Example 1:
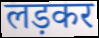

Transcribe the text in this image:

लड़कर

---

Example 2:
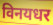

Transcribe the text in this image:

विनयधर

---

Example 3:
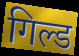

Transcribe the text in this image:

गिल्ड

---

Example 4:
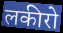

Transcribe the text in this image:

लकीरो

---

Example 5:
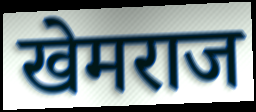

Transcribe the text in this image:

खेमराज